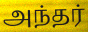
அந்தர்